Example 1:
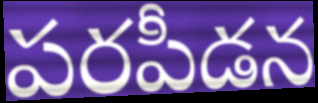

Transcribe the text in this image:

పరపీడన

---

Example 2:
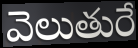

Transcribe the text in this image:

వెలుతురే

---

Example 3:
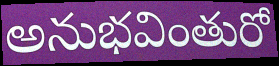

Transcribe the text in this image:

అనుభవింతురో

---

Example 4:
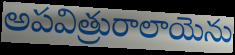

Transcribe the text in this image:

అపవిత్రురాలాయెను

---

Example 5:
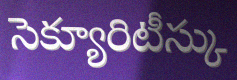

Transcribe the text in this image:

సెక్యూరిటీస్కు